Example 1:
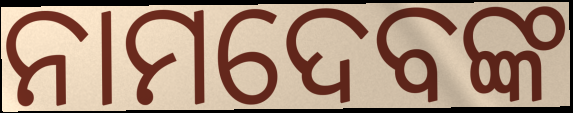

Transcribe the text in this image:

ନାମଦେବଙ୍କ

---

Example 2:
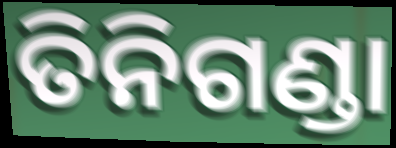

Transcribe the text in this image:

ତିନିଗଣ୍ଡା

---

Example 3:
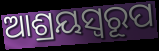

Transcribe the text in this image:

ଆଶ୍ରୟସ୍ୱରୂପ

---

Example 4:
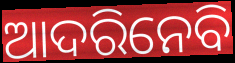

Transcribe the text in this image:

ଆଦରିନେବି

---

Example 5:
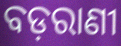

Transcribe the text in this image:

ବଡ଼ରାଣୀ